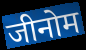
जीनोम